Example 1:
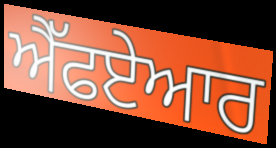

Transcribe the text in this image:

ਐੱਫਏਆਰ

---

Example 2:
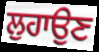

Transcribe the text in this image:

ਲੁਹਾਉਣ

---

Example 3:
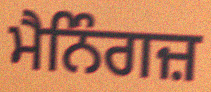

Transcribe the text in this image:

ਮੈਨਿੰਗਜ਼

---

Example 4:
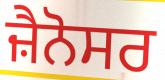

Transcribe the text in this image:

ਜ਼ੈਨੋਸਰ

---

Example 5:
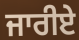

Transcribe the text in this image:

ਜਾਰੀਏ